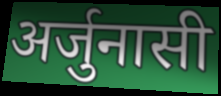
अर्जुनासी